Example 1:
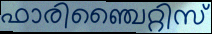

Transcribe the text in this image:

ഫാരിഞ്ചൈറ്റിസ്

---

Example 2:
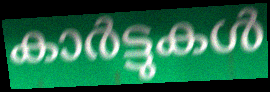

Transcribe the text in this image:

കാർട്ടുകൾ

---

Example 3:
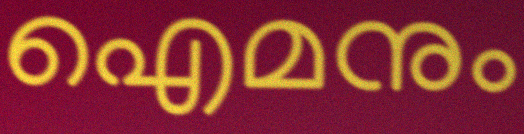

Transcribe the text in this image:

ഐമനും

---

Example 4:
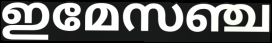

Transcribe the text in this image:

ഇമേസഞ്ച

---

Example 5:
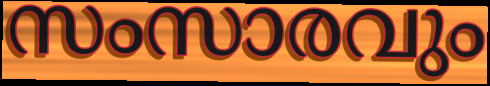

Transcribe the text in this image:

സംസാരവും